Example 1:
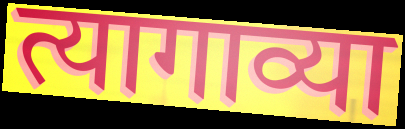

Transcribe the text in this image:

त्यागाव्या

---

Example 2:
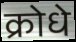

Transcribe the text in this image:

क्रोधे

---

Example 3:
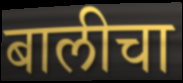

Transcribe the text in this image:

बालीचा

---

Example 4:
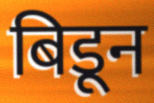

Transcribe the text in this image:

बिडून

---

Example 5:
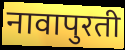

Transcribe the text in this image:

नावापुरती